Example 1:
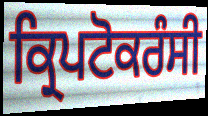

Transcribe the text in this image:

ਕ੍ਰਿਪਟੋਕਰੰਸੀ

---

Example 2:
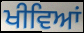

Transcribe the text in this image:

ਖੀਵਿਆਂ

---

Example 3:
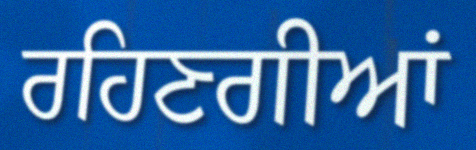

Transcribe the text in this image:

ਰਹਿਣਗੀਆਂ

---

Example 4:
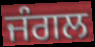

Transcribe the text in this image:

ਜੰਗਲ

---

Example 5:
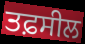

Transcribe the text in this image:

ਤਫ਼ਸੀਲ